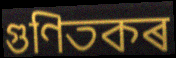
গুণিতকৰ